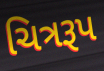
ચિત્રરૂપ